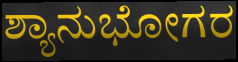
ಶ್ಯಾನುಭೋಗರ